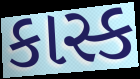
કાસ્ક